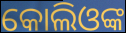
କୋଲିଓଙ୍କ